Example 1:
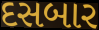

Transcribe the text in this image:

દસબાર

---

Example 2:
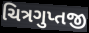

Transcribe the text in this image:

ચિત્રગુપ્તજી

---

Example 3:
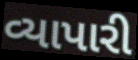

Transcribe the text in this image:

વ્યાપારી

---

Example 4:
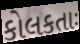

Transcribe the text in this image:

કોલકતાઃ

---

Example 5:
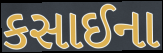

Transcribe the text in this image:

કસાઈના